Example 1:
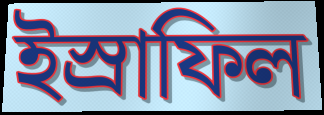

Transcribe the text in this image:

ইস্রাফিল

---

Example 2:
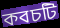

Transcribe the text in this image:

কবচটি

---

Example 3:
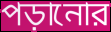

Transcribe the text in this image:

পড়ানোর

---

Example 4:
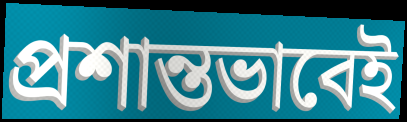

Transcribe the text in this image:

প্রশান্তভাবেই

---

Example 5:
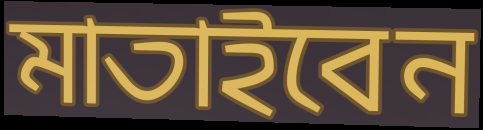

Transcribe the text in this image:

মাতাইবেন